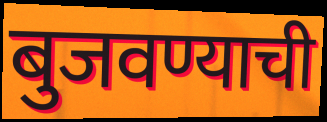
बुजवण्याची